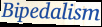
Bipedalism